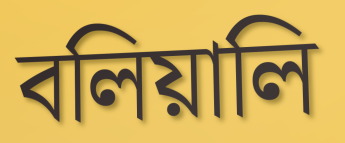
বলিয়ালি